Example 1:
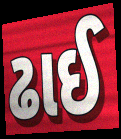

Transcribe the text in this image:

ઢાઈ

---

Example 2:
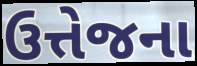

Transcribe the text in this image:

ઉત્તેજના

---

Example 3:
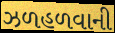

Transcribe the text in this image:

ઝળહળવાની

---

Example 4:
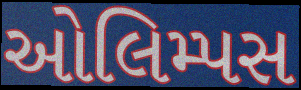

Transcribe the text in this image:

ઓલિમ્પસ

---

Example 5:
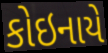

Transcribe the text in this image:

કોઇનાયે